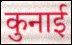
कुनाई